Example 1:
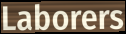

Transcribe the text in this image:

Laborers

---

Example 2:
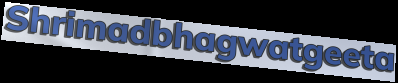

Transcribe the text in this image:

Shrimadbhagwatgeeta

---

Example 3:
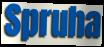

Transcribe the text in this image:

Spruha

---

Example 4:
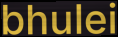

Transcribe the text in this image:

bhulei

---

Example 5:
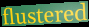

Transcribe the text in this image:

flustered